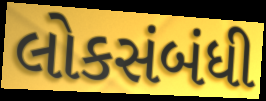
લોકસંબંધી